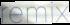
remix